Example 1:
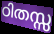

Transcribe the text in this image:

ഠിതസ്സ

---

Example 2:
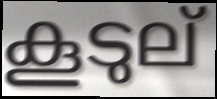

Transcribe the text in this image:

കൂടുല്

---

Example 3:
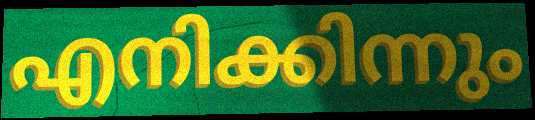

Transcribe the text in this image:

എനിക്കിന്നും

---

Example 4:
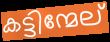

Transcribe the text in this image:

കട്ടിന്മേല്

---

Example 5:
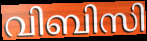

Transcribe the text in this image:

വിബിസി